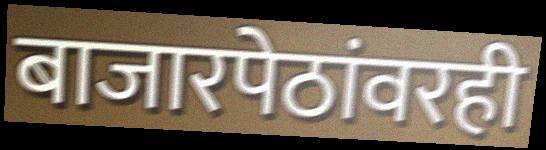
बाजारपेठांवरही